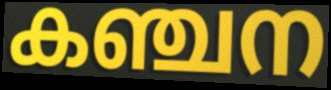
കഞ്ചന